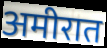
अमीरात